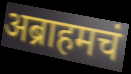
अब्राहमचं